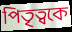
পিতৃত্বকে